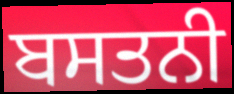
ਬਸਤਨੀ